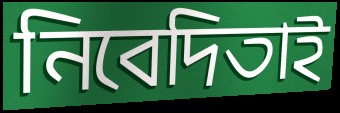
নিবেদিতাই